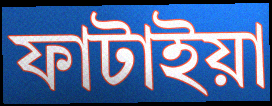
ফাটাইয়া